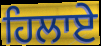
ਹਿਲਾਏ